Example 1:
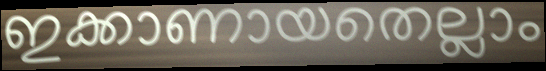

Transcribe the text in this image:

ഇക്കാണായതെല്ലാം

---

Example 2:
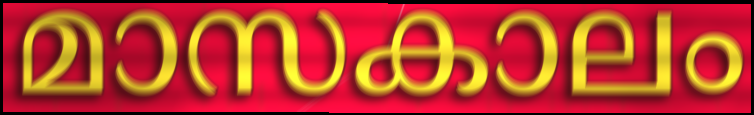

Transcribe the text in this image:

മാസകാലം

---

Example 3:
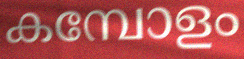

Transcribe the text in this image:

കമ്പോളം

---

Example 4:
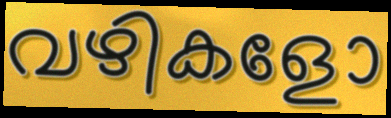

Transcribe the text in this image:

വഴികളോ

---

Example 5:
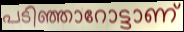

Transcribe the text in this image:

പടിഞ്ഞാറോട്ടാണ്